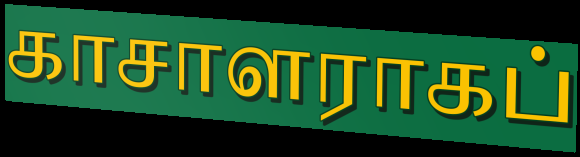
காசாளராகப்